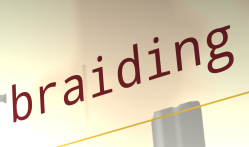
braiding